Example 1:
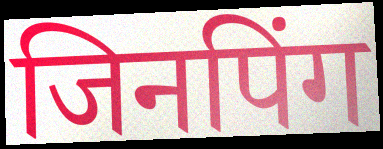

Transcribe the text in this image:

जिनपिंग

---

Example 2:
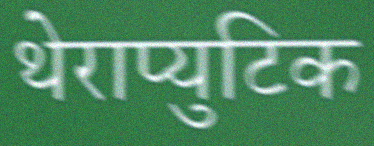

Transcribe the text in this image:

थेराप्युटिक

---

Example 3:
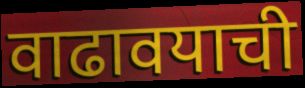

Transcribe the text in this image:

वाढावयाची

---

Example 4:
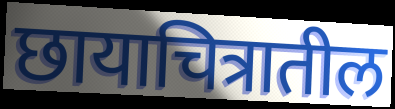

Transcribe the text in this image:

छायाचित्रातील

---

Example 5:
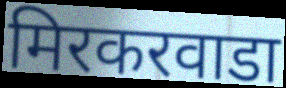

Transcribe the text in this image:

मिरकरवाडा